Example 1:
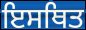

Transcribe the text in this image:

ਇਸਥਿਤ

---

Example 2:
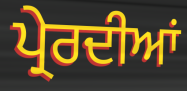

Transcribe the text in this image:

ਪ੍ਰੇਰਦੀਆਂ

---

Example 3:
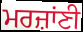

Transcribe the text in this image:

ਮਰਜ਼ਾਂਣੀ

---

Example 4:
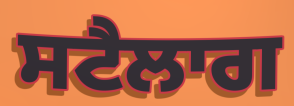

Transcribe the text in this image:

ਸਟੈਲਾਗ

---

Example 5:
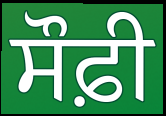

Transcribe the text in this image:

ਸੌਫ਼ੀ